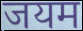
जयम